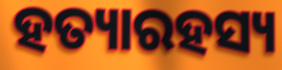
ହତ୍ୟାରହସ୍ୟ